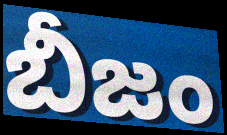
బీజం